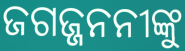
ଜଗଜ୍ଜନନୀଙ୍କୁ